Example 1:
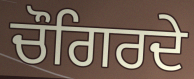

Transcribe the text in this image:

ਚੌਗਿਰਦੇ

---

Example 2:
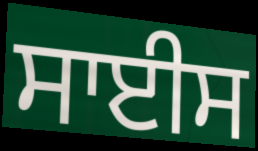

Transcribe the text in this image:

ਸਾਈਸ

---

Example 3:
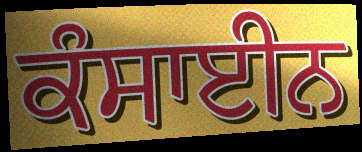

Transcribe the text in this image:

ਕੰਸਾਈਨ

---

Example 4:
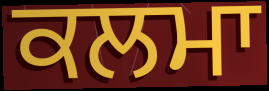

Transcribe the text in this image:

ਕਲਮਾ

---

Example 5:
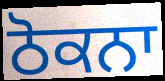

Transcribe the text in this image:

ਠੋਕਨਾ